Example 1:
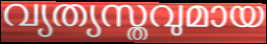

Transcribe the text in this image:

വ്യത്യസ്തവുമായ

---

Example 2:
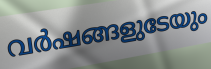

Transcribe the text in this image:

വർഷങ്ങളുടേയും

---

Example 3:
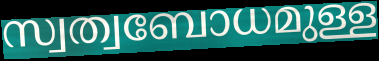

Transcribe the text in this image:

സ്വത്വബോധമുള്ള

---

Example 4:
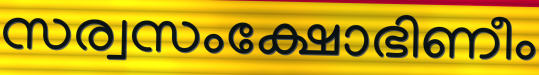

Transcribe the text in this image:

സര്വസംക്ഷോഭിണീം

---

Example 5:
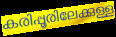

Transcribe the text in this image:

കരിപ്പൂരിലേക്കുള്ള